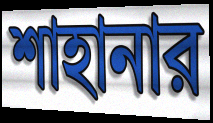
শাহানার